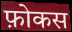
फ़ोकस